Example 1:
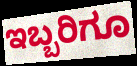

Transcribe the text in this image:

ಇಬ್ಬರಿಗೂ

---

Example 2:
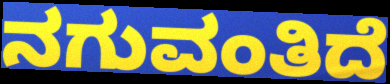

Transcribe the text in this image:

ನಗುವಂತಿದೆ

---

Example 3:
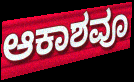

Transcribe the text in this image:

ಆಕಾಶವೂ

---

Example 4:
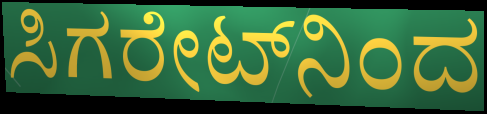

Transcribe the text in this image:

ಸಿಗರೇಟ್‌ನಿಂದ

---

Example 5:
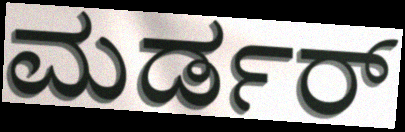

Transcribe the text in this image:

ಮರ್ಡರ್